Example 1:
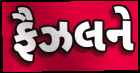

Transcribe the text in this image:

ફૈઝલને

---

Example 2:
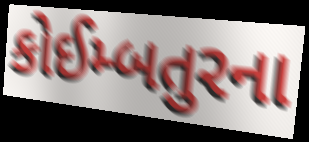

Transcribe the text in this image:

કોઈમ્બતુરના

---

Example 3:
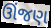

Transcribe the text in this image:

ઊંજણ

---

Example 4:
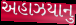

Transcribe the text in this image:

અહાઝયાનુ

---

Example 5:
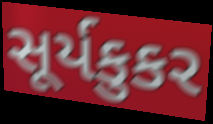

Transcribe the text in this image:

સૂર્યકુકર